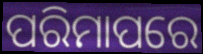
ପରିମାପରେ